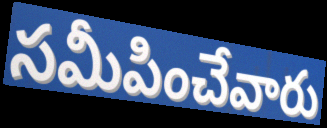
సమీపించేవారు